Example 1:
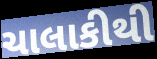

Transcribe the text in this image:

ચાલાકીથી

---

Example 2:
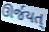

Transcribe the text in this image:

ઊર્જયત્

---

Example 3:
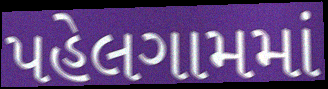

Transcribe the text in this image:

પહેલગામમાં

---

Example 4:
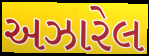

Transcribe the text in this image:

અઝારેલ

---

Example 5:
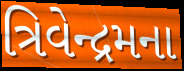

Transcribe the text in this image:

ત્રિવેન્દ્રમના